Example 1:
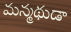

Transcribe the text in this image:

మన్మథుడా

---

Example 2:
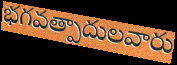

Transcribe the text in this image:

భగవత్పాదులవారు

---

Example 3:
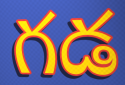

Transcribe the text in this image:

గడ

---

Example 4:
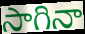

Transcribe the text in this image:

సాగినా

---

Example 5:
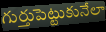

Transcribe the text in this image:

గుర్తుపెట్టుకునేలా